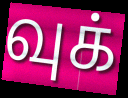
வுக்